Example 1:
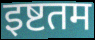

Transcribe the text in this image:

इष्टतम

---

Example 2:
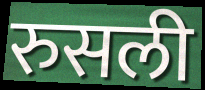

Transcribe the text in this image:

रुसली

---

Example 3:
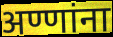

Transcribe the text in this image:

अण्णांना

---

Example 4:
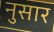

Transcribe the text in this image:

नुसार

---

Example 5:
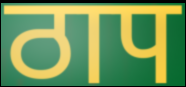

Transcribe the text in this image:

ठाप